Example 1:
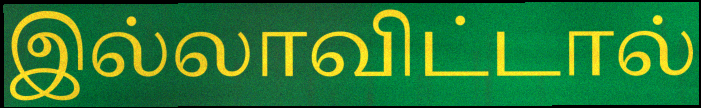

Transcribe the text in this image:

இல்லாவிட்டால்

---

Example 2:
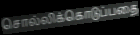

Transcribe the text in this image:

சொல்லிக்கொடுப்பதை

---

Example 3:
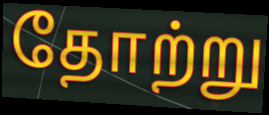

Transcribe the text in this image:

தோற்று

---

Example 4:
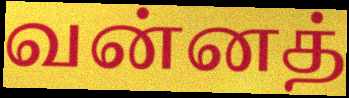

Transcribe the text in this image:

வன்னத்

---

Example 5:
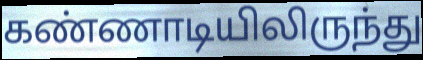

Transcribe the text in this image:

கண்ணாடியிலிருந்து